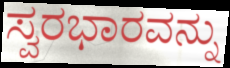
ಸ್ವರಭಾರವನ್ನು